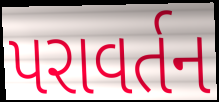
પરાવર્તન